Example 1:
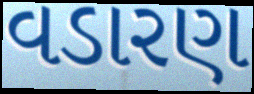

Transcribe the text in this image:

વડારણ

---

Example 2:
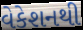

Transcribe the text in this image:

વેકેશનથી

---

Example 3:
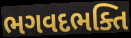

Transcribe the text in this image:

ભગવદભક્તિ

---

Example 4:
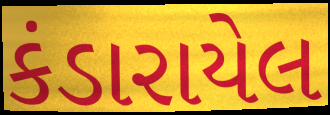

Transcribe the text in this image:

કંડારાયેલ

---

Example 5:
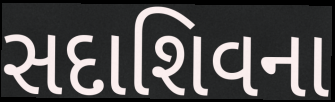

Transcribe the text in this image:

સદાશિવના